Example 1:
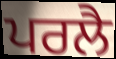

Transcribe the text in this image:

ਪਰਲੈ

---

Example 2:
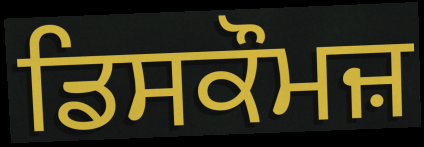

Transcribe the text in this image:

ਡਿਸਕੌਮਜ਼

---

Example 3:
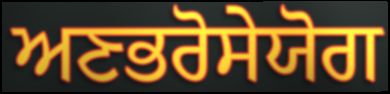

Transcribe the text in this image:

ਅਣਭਰੋਸੇਯੋਗ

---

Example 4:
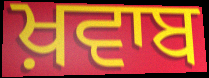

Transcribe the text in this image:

ਖ਼ਵਾਬ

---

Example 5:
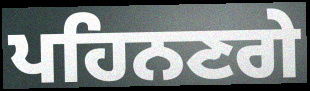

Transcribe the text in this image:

ਪਹਿਨਣਗੇ